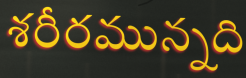
శరీరమున్నది